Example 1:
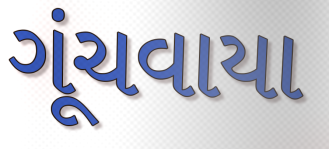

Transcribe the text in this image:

ગૂંચવાયા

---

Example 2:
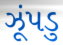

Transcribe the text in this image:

ઝૂંપડુ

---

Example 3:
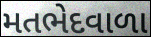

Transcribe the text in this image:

મતભેદવાળા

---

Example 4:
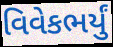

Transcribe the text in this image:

વિવેકભર્યું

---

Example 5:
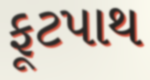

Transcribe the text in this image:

ફૂટપાથ